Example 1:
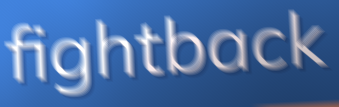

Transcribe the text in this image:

fightback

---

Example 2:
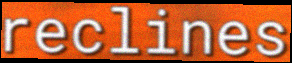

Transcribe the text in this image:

reclines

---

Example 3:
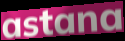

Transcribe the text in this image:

astana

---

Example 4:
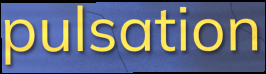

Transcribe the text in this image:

pulsation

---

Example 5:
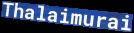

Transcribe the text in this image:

Thalaimurai